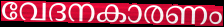
വേദനകാരണം